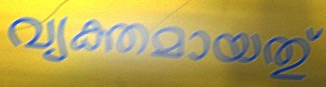
വ്യക്തമായതു്